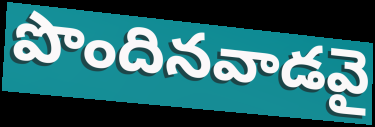
పొందినవాడవై